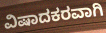
ವಿಷಾದಕರವಾಗಿ